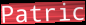
Patric